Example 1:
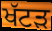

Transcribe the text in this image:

ਖੱਟੜ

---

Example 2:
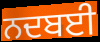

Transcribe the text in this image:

ਨਦਬਈ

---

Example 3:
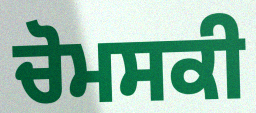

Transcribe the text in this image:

ਚੋਮਸਕੀ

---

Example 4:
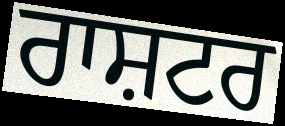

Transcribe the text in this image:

ਰਾਸ਼ਟਰ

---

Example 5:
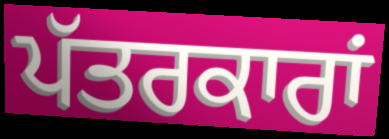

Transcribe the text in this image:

ਪੱਤਰਕਾਰਾਂ